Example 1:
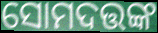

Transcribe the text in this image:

ସୋମଦତ୍ତଙ୍କ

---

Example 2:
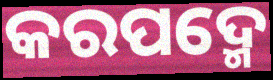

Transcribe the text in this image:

କରପଦ୍ମେ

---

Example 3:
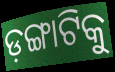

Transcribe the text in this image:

ଡ଼ଙ୍ଗାଟିକୁ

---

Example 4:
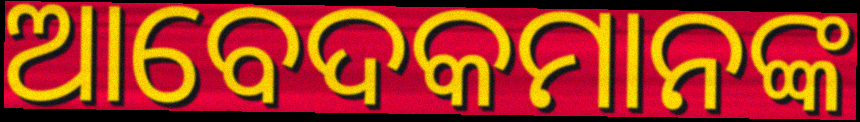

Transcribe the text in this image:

ଆବେଦକମାନଙ୍କ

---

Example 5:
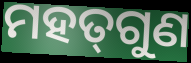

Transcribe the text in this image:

ମହତ୍‍ଗୁଣ